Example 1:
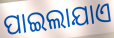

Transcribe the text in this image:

ପାଇଲାଯାଏ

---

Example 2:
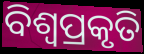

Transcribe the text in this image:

ବିଶ୍ଵପ୍ରକୃତି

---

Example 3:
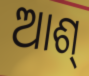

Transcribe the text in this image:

ଆଶ୍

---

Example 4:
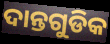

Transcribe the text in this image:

ଦାନ୍ତଗୁଡିକ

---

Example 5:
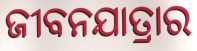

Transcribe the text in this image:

ଜୀବନଯାତ୍ରାର